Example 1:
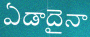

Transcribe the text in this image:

ఏడాదైనా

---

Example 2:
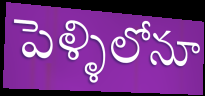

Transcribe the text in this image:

పెళ్ళిలోనూ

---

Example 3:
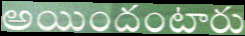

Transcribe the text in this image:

అయిందంటారు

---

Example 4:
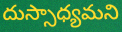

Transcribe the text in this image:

దుస్సాధ్యమని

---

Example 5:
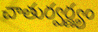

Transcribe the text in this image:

చాతుర్వర్ణ్యం